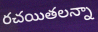
రచయితలన్నా